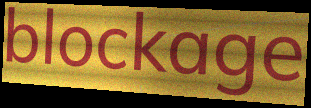
blockage